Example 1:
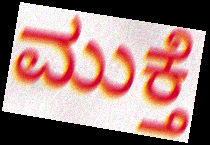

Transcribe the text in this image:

ಮುಕ್ತೆ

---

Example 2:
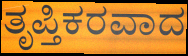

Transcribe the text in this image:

ತೃಪ್ತಿಕರವಾದ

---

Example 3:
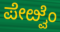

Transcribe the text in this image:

ಪೇೞ್ವೆಂ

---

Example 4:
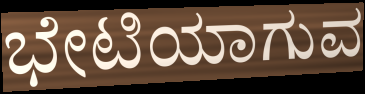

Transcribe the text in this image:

ಭೇಟಿಯಾಗುವ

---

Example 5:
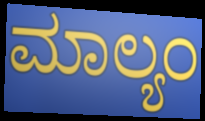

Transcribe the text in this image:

ಮಾಲ್ಯಂ